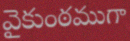
వైకుంఠముగా